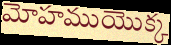
మోహముయొక్క